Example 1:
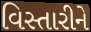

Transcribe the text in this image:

વિસ્તારીને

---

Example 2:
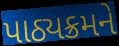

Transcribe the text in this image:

પાઠ્યક્રમને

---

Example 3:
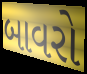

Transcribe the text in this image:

બાવરો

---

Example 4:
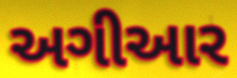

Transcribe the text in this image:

અગીઆર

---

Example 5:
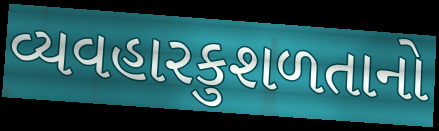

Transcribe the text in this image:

વ્યવહારકુશળતાનો